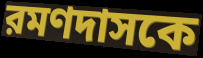
রমণদাসকে